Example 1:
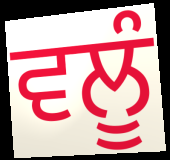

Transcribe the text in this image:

ਵਲੂੰ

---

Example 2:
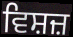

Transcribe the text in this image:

ਵਿਸ਼ਜ਼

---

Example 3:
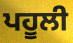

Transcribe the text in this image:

ਪਹੂਲੀ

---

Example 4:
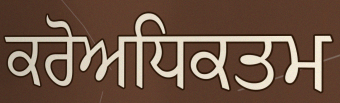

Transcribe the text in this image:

ਕਰੋਅਧਿਕਤਮ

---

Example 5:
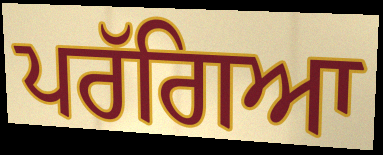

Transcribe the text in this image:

ਪਰੱਗਿਆ